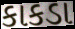
કાકડા